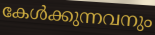
കേൾക്കുന്നവനും